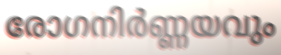
രോഗനിർണ്ണയവും